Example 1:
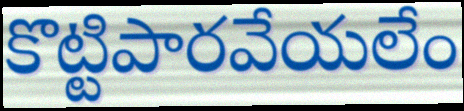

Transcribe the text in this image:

కొట్టిపారవేయలేం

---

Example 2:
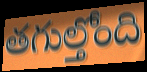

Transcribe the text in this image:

తగుల్తోంది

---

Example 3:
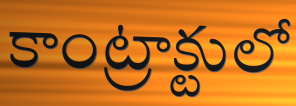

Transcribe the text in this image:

కాంట్రాక్టులో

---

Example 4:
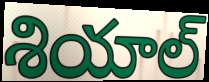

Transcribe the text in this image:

శియాల్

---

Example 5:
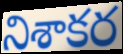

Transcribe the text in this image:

నిశాకర